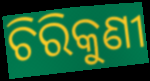
ଚିରିକୁଣୀ